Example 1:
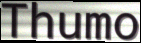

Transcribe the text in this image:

Thumo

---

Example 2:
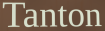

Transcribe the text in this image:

Tanton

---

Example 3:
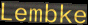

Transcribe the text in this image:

Lembke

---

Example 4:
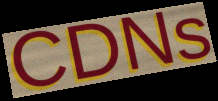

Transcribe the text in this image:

CDNs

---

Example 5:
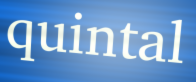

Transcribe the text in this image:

quintal